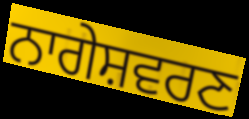
ਨਾਗੇਸ਼ਵਰਣ